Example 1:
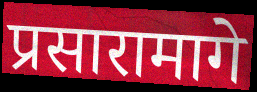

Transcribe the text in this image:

प्रसारामागे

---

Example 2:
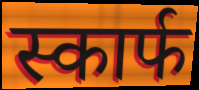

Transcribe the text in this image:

स्कार्फ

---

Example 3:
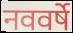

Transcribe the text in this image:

नववर्षे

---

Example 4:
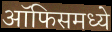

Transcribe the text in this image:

ऑफिसमध्ये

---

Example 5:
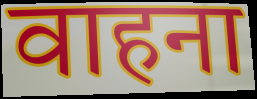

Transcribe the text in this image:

वाहना